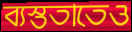
ব্যস্ততাতেও